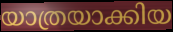
യാത്രയാക്കിയ